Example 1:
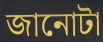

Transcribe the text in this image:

জানোটা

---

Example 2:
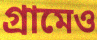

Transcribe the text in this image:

গ্রামেও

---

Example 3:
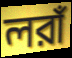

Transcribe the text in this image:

লরাঁ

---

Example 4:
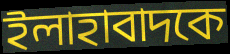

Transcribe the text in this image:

ইলাহাবাদকে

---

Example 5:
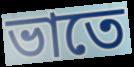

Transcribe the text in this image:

ভাতে